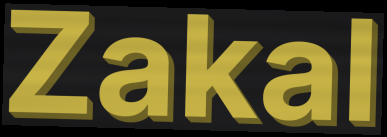
Zakal